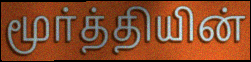
மூர்த்தியின்